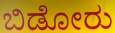
ಬಿಡೋರು